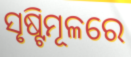
ସୃଷ୍ଟିମୂଳରେ